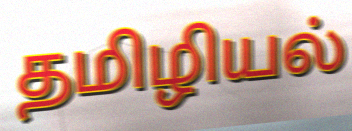
தமிழியல்